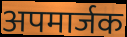
अपमार्जक